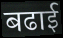
बढाई